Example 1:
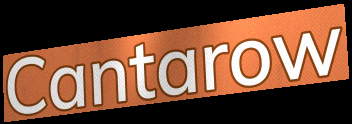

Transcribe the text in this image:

Cantarow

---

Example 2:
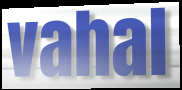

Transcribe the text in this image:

vahal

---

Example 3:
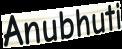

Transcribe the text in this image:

Anubhuti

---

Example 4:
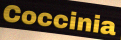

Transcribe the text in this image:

Coccinia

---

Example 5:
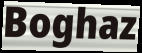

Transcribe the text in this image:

Boghaz